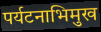
पर्यटनाभिमुख